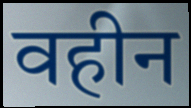
वहीन